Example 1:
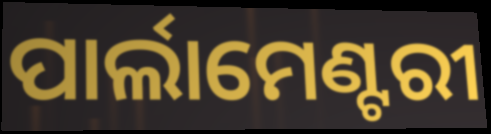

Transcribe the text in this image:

ପାର୍ଲାମେଣ୍ଟରୀ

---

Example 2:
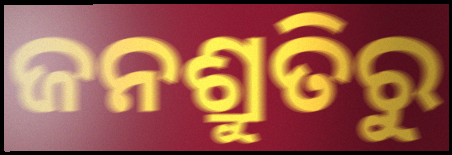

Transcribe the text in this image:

ଜନଶ୍ରୁତିରୁ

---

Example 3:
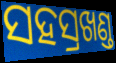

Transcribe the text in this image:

ସହସ୍ରଖଣ୍ଡ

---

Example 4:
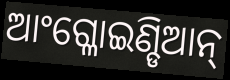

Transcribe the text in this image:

ଆଂଗ୍ଳୋଇଣ୍ଡିଆନ୍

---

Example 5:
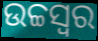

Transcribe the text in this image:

ଉଚ୍ଚସ୍ବର